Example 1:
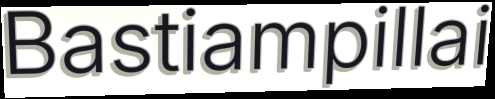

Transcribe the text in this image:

Bastiampillai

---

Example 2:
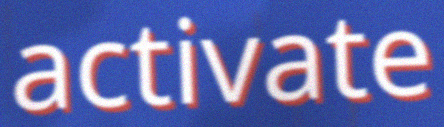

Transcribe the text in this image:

activate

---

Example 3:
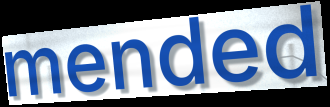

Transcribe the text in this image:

mended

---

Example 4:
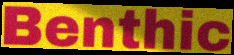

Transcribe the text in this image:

Benthic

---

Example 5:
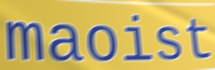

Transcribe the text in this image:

maoist